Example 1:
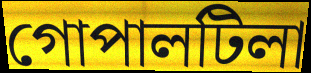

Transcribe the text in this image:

গোপালটিলা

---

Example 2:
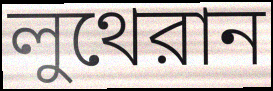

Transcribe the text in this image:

লুথেরান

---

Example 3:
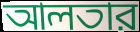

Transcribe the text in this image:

আলতার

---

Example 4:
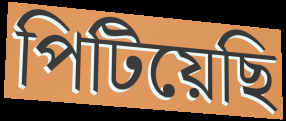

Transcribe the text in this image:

পিটিয়েছি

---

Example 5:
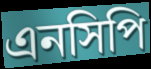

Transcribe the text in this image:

এনসিপি